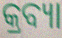
କ୍ରବ୍ୟା